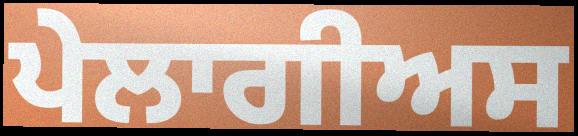
ਪੇਲਾਗੀਅਸ